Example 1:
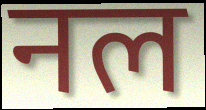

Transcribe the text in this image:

नल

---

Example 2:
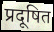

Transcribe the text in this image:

प्रदूषित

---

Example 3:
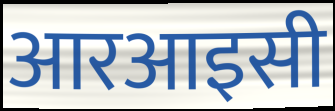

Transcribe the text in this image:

आरआइसी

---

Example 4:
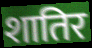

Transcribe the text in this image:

शातिर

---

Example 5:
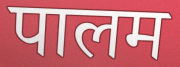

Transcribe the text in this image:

पालम